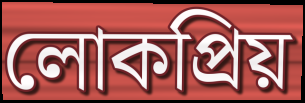
লোকপ্ৰিয়